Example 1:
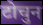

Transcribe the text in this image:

टोचुन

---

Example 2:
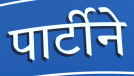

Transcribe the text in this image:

पार्टीने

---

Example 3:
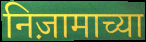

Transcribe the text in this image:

निज़ामाच्या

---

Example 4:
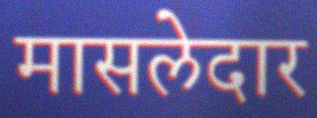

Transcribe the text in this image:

मासलेदार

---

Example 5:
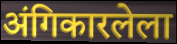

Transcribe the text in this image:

अंगिकारलेला